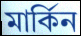
মাৰ্কিন